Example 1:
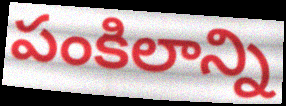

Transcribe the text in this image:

పంకిలాన్ని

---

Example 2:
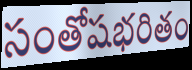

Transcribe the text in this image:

సంతోషభరితం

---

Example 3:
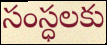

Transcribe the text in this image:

సంస్ధలకు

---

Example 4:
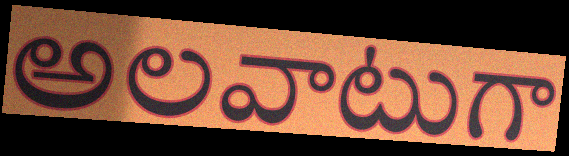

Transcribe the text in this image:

అలవాటుగా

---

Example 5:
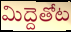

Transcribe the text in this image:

మిద్దెతోట